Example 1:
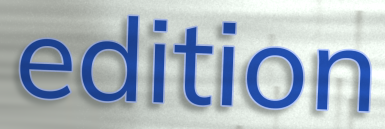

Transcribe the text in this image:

edition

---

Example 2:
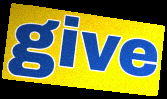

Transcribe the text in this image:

give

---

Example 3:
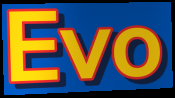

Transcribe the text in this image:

Evo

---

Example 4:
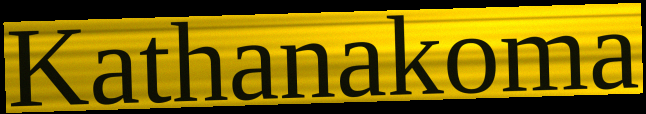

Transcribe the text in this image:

Kathanakoma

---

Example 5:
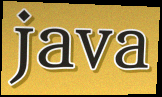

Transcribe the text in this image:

java